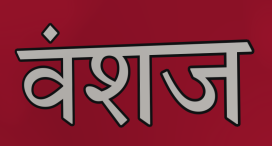
वंशज